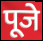
पूजे